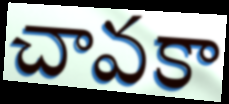
చావకా